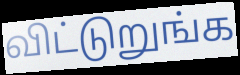
விட்டுறுங்க